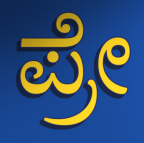
ಪ್ರೇ